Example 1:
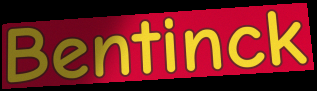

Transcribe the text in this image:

Bentinck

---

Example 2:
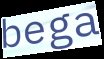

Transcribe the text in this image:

bega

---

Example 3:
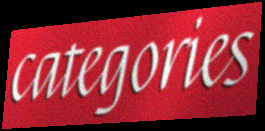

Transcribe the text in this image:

categories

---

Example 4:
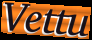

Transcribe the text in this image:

Vettu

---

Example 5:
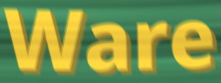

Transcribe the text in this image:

Ware